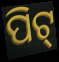
ପିଟ୍